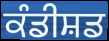
ਕੰਡੀਸ਼ਡ